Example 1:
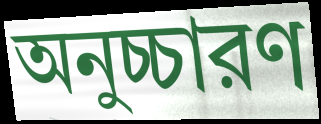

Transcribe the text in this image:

অনুচ্চারণ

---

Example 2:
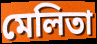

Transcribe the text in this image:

মেলিতা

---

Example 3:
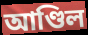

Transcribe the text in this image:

আণ্ডিল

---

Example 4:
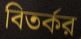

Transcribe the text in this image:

বিতর্কর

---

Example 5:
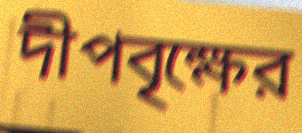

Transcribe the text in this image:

দীপবৃক্ষের